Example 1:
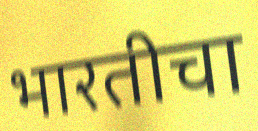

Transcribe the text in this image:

भारतीचा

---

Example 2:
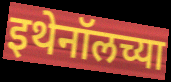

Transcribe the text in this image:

इथेनॉलच्या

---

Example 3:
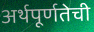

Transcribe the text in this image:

अर्थपूर्णतेची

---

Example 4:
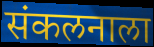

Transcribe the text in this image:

संकलनाला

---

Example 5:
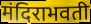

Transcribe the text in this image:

मंदिराभवती